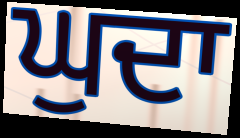
ਘੁਦਾ